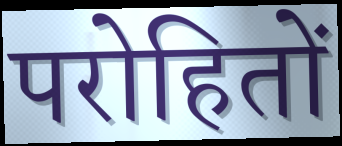
परोहितों